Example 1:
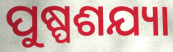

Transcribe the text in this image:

ପୁଷ୍ପଶଯ୍ୟା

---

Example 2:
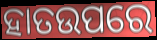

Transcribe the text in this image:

ହାତଉପରେ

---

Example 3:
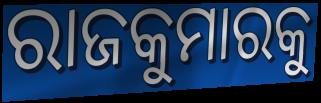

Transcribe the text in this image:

ରାଜକୁମାରକୁ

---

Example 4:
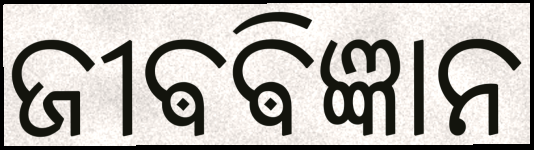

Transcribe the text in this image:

ଜୀଵଵିଜ୍ଞାନ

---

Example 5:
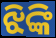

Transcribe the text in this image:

ଝିଙ୍କି